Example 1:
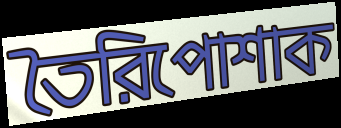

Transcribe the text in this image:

তৈরিপোশাক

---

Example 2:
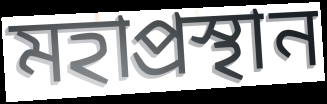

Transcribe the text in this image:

মহাপ্রস্থান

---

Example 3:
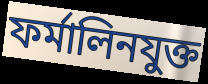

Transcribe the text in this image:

ফর্মালিনযুক্ত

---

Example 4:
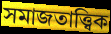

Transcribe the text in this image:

সমাজতাত্ত্বিক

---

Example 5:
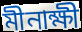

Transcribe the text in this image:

মীনাক্ষী